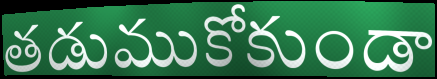
తడుముకోకుండా